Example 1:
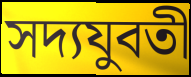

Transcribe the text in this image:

সদ্যযুবতী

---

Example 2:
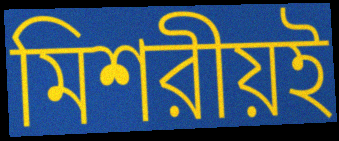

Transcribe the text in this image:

মিশরীয়ই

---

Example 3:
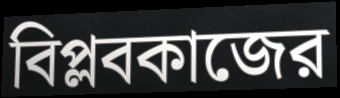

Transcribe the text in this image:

বিপ্লবকাজের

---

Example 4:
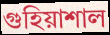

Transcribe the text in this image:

গুহিয়াশাল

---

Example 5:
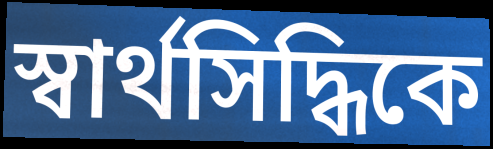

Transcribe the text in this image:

স্বার্থসিদ্ধিকে